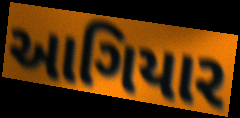
આગિયાર